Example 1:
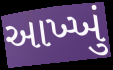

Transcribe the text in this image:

આખ્ખું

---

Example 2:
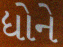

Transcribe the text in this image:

દ્યોને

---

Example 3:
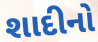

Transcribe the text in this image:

શાદીનો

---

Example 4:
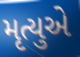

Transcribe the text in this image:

મૃત્યુએ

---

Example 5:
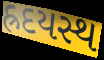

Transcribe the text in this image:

હ્રદયસ્થ